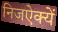
निजऐक्यें